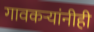
गावकऱ्यांनीही